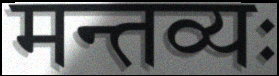
मन्तव्यः